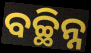
ବଚ୍ଛିନ୍ନ